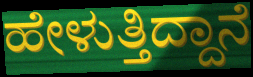
ಹೇಳುತ್ತಿದ್ದಾನೆ